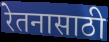
रेतनासाठी